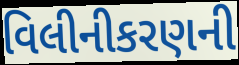
વિલીનીકરણની